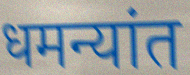
धमन्यांत